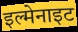
इल्मेनाइट